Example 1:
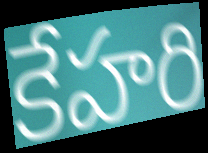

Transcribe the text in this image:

కేహరి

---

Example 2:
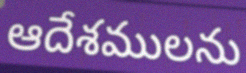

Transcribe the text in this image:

ఆదేశములను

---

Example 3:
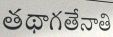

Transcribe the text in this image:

తథాగతేనాతి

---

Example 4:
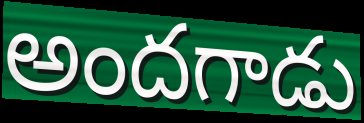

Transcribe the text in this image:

అందగాడు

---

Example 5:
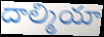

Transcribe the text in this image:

దాల్మియా